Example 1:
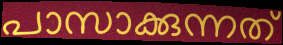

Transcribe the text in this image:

പാസാക്കുന്നത്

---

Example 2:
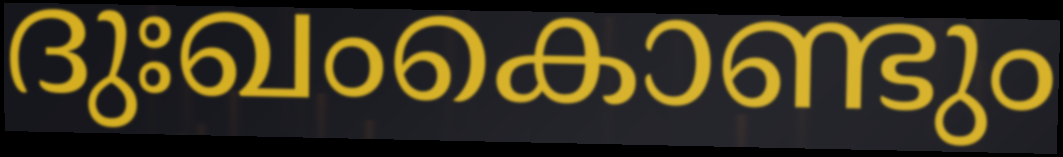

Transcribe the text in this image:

ദുഃഖംകൊണ്ടും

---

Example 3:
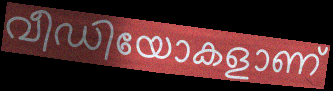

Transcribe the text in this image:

വീഡിയോകളാണ്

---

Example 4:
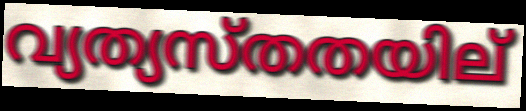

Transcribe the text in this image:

വ്യത്യസ്തതയില്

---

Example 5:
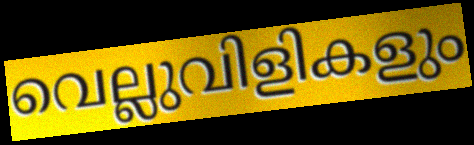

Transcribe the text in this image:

വെല്ലുവിളികളും